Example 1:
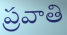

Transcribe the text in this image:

ప్రవాతి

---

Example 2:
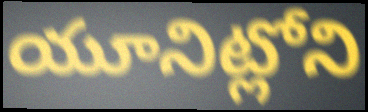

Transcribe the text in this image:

యూనిట్లోని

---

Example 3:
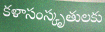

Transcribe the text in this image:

కళాసంస్కృతులకు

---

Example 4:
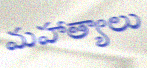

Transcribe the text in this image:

మహాత్యాలు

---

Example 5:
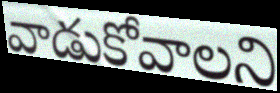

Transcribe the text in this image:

వాడుకోవాలని